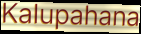
Kalupahana